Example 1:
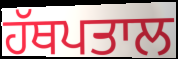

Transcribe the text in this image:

ਹੱਥਪਤਾਲ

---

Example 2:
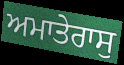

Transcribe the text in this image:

ਅਮਾਤੇਰਾਸੁ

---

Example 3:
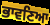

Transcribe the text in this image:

ਭਾਵਣਿਆ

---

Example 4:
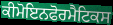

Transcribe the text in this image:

ਕੀਮੋਇਨਫੋਰਮੈਟਿਕਸ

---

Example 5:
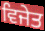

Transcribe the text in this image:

ਵਿਜੇਤ